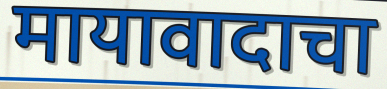
मायावादाचा